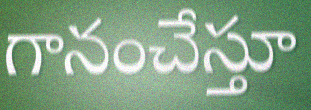
గానంచేస్తూ